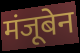
मंजूबेन